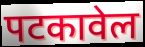
पटकावेल